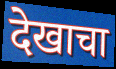
देखाचा